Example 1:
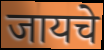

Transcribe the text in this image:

जायचे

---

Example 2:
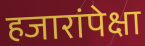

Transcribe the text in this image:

हजारांपेक्षा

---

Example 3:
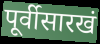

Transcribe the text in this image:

पूर्वीसारखं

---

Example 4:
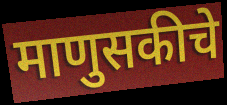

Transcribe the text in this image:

माणुसकीचे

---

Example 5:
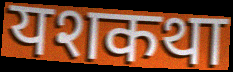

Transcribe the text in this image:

यशकथा